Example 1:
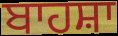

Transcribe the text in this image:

ਬਾਹਸ਼ਾ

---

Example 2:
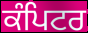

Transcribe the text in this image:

ਕੰਪਿਟਰ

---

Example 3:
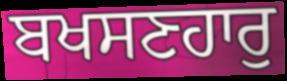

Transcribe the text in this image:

ਬਖਸਣਹਾਰੁ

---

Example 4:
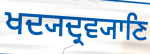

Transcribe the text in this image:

ਖਦ੍ਯਦ੍ਰਵ੍ਯਾਣਿ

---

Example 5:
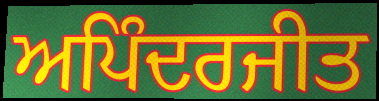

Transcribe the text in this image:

ਅਪਿੰਦਰਜੀਤ